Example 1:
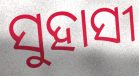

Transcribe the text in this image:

ସୁହାସୀ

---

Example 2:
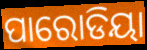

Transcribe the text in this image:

ପାରୋଡିୟା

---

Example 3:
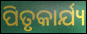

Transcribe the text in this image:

ପିତୃକାର୍ଯ୍ୟ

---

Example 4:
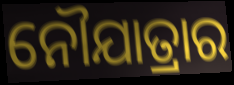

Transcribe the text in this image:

ନୌଯାତ୍ରାର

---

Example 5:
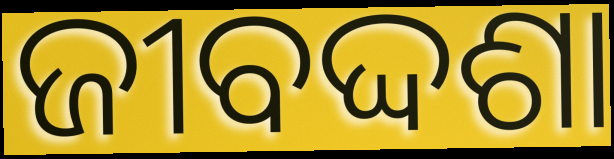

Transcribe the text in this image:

ଜୀବଦ୍ଦଶା